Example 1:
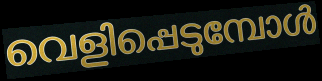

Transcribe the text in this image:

വെളിപ്പെടുമ്പോൾ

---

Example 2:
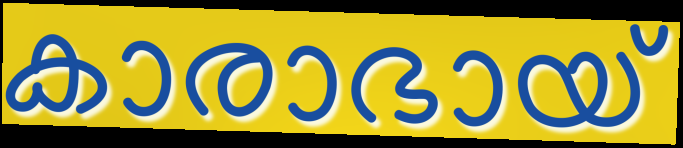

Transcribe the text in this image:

കാരാഭായ്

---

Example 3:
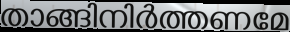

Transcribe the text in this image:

താങ്ങിനിർത്തണമേ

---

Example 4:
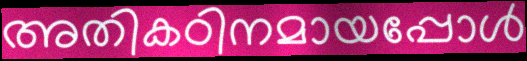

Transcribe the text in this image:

അതികഠിനമായപ്പോൾ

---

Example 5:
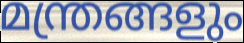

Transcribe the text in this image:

മന്ത്രങ്ങളും